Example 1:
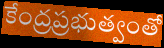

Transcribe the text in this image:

కేంద్రప్రభుత్వంతో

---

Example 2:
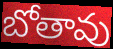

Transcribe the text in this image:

బోతావు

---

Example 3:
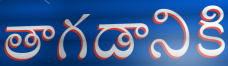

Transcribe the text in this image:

తాగడానికి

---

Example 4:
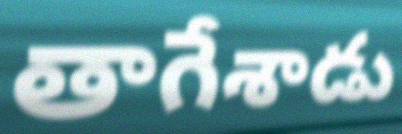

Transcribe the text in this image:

తాగేశాడు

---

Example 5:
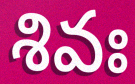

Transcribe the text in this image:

శివః